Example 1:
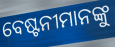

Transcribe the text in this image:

ବେଷ୍ଟନୀମାନଙ୍କୁ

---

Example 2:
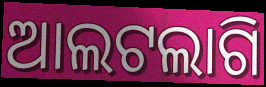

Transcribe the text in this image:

ଆଲଟଲାଗି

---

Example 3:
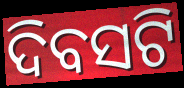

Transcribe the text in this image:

ଦିବସଟି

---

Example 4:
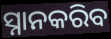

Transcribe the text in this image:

ସ୍ନାନକରିବ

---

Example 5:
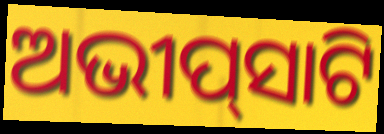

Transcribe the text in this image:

ଅଭୀପ୍‌ସାଟି